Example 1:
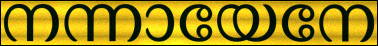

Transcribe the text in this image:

നന്നായേനേ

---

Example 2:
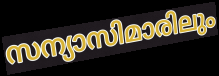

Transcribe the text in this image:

സന്യാസിമാരിലും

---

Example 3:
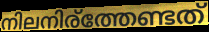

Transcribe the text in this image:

നിലനിര്ത്തേണ്ടത്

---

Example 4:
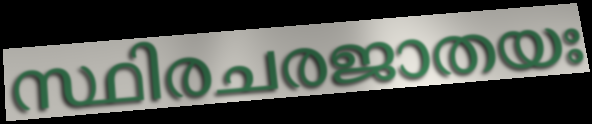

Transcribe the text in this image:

സ്ഥിരചരജാതയഃ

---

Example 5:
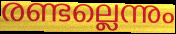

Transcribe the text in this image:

രണ്ടല്ലെന്നും